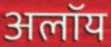
अलॉय